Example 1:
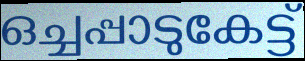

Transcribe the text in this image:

ഒച്ചപ്പാടുകേട്ട്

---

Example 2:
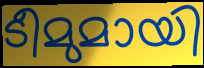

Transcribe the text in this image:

ടീമുമായി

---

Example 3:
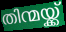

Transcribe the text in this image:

തിന്മയ്ക്ക്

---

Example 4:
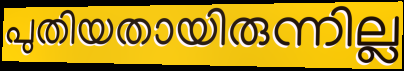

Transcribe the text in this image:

പുതിയതായിരുന്നില്ല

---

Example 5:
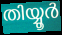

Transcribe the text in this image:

തിയ്യൂർ